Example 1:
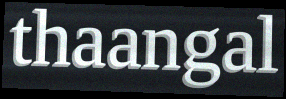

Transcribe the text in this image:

thaangal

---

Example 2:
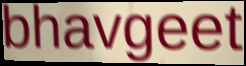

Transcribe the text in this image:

bhavgeet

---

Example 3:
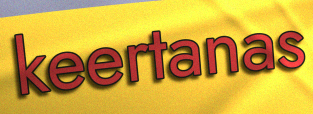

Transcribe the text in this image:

keertanas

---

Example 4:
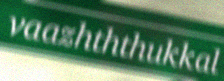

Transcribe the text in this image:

vaazhththukkal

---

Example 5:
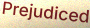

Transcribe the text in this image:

Prejudiced